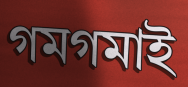
গমগমাই